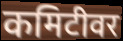
कमिटीवर